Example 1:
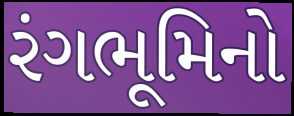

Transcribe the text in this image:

રંગભૂમિનો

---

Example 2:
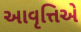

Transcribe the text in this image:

આવૃત્તિએ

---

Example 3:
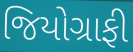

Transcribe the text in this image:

જિયોગ્રાફી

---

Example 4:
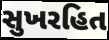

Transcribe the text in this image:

સુખરહિત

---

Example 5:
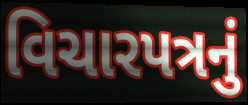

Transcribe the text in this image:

વિચારપત્રનું